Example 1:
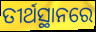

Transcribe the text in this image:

ତୀର୍ଥସ୍ଥାନରେ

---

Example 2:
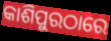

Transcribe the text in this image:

କାଶିପୁରଠାରେ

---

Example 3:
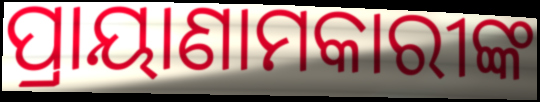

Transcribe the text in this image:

ପ୍ରାୟାଣାମକାରୀଙ୍କ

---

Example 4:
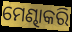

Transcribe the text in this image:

ମେଣ୍ଢାକରି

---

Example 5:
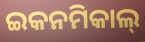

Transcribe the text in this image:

ଇକନମିକାଲ୍